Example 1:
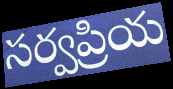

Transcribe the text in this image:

సర్వప్రియ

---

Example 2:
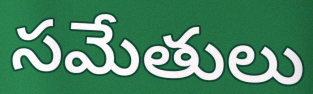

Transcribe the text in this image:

సమేతులు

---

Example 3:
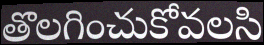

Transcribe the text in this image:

తొలగించుకోవలసి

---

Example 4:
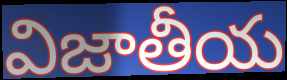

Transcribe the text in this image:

విజాతీయ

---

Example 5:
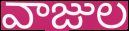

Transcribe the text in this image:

వాజుల